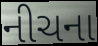
નીચના